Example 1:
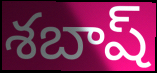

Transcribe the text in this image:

శబాష్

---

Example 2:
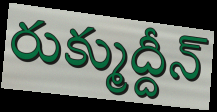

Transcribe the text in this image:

రుక్ముద్దీన్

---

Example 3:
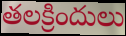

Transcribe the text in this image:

తలక్రిందులు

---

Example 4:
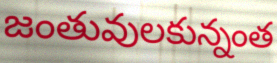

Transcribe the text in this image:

జంతువులకున్నంత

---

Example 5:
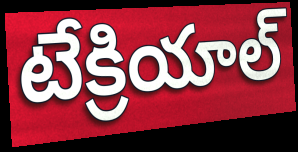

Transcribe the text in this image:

టేక్రియాల్